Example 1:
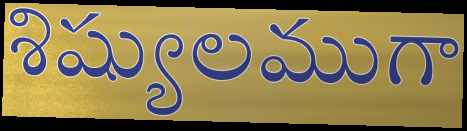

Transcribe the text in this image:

శిష్యులముగా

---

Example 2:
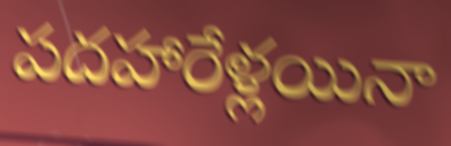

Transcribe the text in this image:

పదహారేళ్లయినా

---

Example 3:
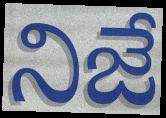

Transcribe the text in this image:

నిజే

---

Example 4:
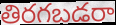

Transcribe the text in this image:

తిరగబడరా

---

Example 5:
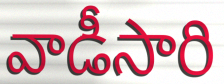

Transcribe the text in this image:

వాడీసారి